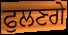
ਫੁਲਣਗੇ